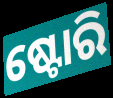
ଷ୍ଟୋରି